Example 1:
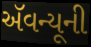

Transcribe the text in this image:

ઍવન્યૂની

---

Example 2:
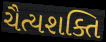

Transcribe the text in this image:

ચૈત્યશક્તિ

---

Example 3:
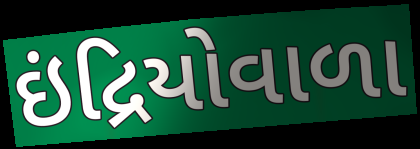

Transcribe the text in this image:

ઇંદ્રિયોવાળા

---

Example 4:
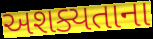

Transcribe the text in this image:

અશક્યતાના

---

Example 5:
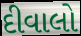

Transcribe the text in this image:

દીવાલો